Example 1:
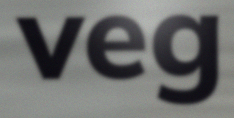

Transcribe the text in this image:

veg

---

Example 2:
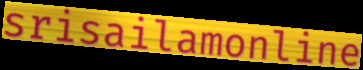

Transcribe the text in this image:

srisailamonline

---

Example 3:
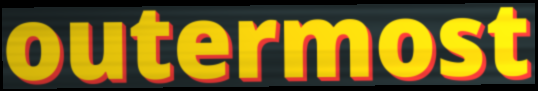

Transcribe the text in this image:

outermost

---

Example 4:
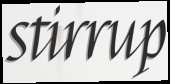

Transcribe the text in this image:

stirrup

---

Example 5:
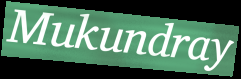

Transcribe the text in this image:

Mukundray